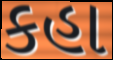
કહા